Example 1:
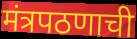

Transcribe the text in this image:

मंत्रपठणाची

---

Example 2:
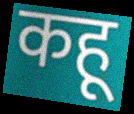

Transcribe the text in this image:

कहू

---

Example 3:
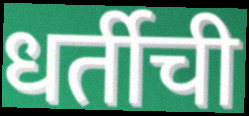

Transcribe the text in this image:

धर्तीची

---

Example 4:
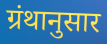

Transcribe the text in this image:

ग्रंथानुसार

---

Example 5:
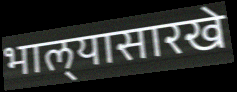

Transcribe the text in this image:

भाल्यासारखे